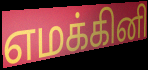
எமக்கினி